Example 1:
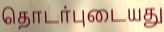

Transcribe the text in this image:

தொடர்புடையது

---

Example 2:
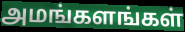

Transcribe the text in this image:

அமங்களங்கள்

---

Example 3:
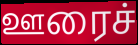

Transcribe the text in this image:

ஊரைச்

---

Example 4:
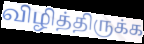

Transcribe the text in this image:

விழித்திருக்க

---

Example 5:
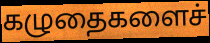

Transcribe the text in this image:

கழுதைகளைச்